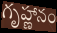
గృహ్ణానం